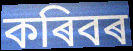
কৰিবৰ